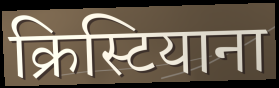
क्रिस्टियाना